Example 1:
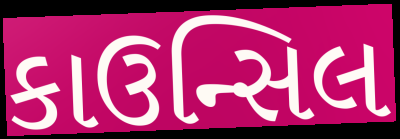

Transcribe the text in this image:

કાઉન્સિલ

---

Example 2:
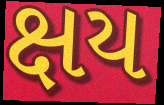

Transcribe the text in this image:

ક્ષય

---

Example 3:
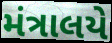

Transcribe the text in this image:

મંત્રાલયે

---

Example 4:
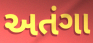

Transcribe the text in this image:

અતંગા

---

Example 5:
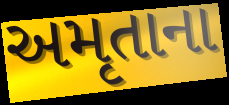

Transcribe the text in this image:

અમૃતાના